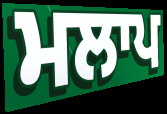
ਮਲਾਪ